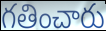
గతించారు